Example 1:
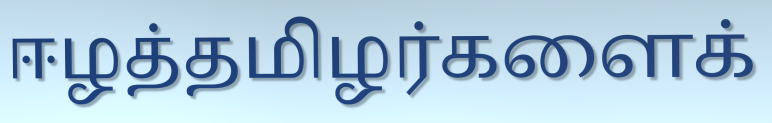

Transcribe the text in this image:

ஈழத்தமிழர்களைக்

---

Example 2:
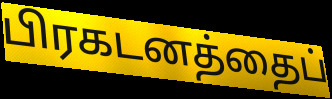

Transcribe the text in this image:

பிரகடனத்தைப்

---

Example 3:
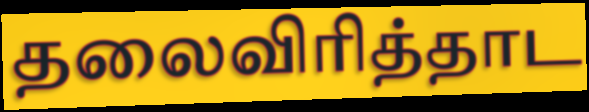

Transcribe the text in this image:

தலைவிரித்தாட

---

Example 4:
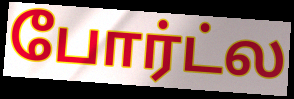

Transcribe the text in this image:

போர்ட்ல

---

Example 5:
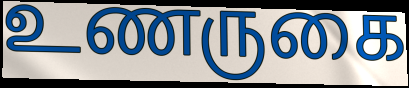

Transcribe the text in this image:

உணருகை